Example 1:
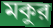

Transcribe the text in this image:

মকুর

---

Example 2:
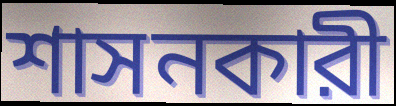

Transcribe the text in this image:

শাসনকারী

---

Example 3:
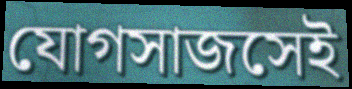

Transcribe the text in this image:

যোগসাজসেই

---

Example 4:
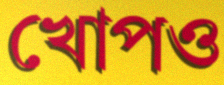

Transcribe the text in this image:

খোপও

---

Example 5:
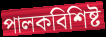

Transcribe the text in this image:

পালকবিশিষ্ট